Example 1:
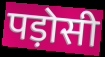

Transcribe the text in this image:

पड़ोसी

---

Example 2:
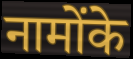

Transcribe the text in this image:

नामोंके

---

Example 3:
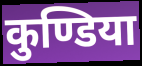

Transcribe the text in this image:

कुण्डिया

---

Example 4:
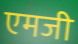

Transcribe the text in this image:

एमजी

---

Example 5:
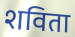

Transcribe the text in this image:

शविता